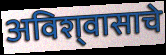
अविश्वासाचे